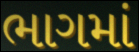
ભાગમાં